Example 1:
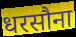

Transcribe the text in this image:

धरसौना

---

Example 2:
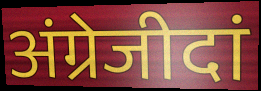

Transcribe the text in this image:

अंग्रेजीदां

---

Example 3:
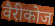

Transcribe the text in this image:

वैरीकोज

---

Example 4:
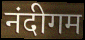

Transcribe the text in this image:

नंदीगम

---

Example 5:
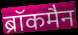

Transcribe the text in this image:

ब्रॉकमैन